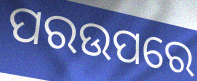
ପରଉପରେ